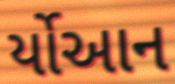
ર્યોઆન